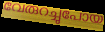
വേരുറച്ചുപോയ